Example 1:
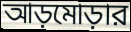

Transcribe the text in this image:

আড়মোড়ার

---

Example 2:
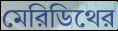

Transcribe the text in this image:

মেরিডিথের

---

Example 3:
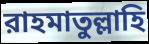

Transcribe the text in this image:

রাহমাতুল্লাহি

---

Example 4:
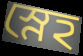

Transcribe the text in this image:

স্নেহ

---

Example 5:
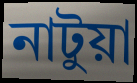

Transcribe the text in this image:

নাটুয়া